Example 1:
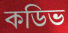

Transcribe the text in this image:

কডিভ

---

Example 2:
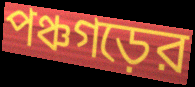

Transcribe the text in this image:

পঞ্চগড়ের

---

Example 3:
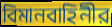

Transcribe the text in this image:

বিমানবাহিনীর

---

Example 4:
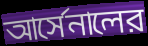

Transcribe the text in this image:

আর্সেনালের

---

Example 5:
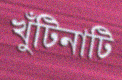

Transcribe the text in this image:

খুঁটিনাটি